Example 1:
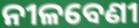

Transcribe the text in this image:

ନୀଳବେଣୀ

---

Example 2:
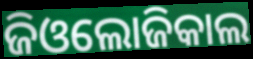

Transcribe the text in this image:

ଜିଓଲୋଜିକାଲ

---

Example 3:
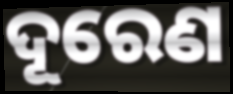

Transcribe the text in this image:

ଦୂରେଣ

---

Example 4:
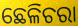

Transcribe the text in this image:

ଛେଳିଚରା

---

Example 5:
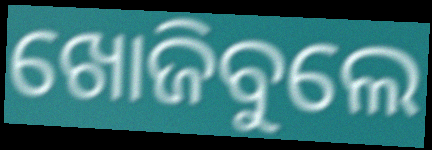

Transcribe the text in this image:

ଖୋଜିବୁଲେ